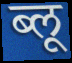
ब्लू